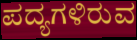
ಪದ್ಯಗಳಿರುವ